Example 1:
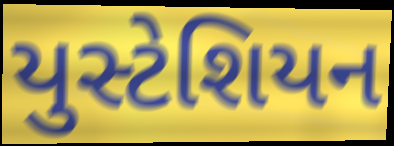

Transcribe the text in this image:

યુસ્ટેશિયન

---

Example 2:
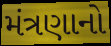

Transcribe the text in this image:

મંત્રણાનો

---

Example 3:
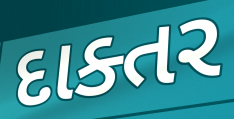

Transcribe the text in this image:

દાક્તર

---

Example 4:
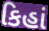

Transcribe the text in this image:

કિહાં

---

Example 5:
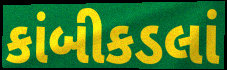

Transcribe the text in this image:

કાંબીકડલાં